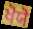
ਖੋਯੋ